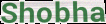
Shobha